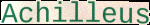
Achilleus